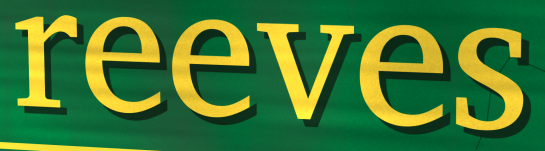
reeves